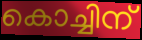
കൊച്ചിന്